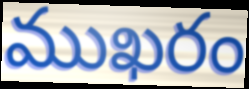
ముఖరం